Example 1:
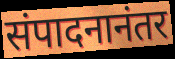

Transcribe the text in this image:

संपादनानंतर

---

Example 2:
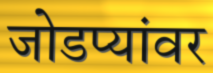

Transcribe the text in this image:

जोडप्यांवर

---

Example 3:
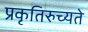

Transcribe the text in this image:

प्रकृतिरुच्यते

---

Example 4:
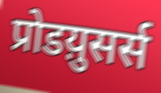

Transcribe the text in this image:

प्रोडय़ुसर्स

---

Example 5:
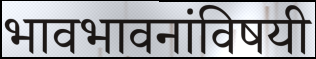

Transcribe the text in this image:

भावभावनांविषयी